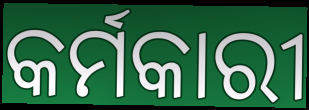
କର୍ମକାରୀ